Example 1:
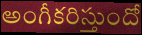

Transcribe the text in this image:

అంగీకరిస్తుందో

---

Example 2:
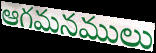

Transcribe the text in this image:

ఆగమనములు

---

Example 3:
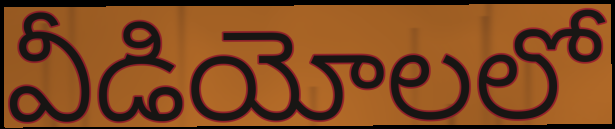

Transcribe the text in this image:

వీడియోలలో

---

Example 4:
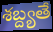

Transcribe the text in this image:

శబ్ద్యతే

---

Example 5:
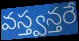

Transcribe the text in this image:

వస్త్వన్తరే